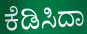
ಕೆಡಿಸಿದಾ